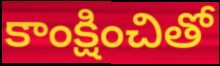
కాంక్షించితో